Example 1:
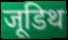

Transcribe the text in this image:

जूडिथ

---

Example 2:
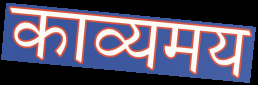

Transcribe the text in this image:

काव्यमय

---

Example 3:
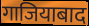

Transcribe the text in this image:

गाजियाबाद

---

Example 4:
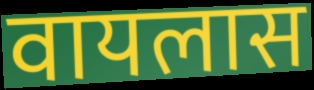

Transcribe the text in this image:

वायलास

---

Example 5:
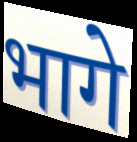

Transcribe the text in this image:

भागे